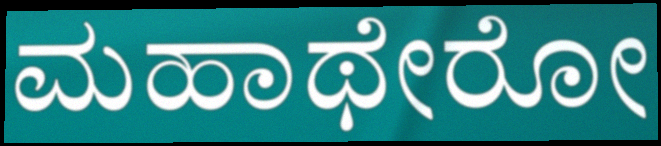
ಮಹಾಥೇರೋ